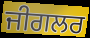
ਜੀਗਲਰ